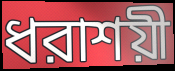
ধরাশয়ী